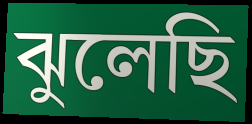
ঝুলেছি